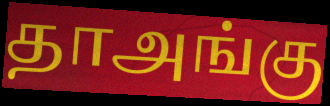
தாஅங்கு